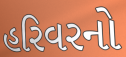
હરિવરનો